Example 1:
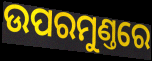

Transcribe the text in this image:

ଉପରମୁଣ୍ତରେ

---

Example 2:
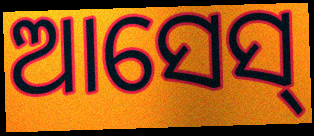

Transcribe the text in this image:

ଆସେସ୍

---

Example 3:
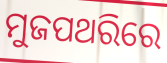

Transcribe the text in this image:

ମୁଜପଥରିରେ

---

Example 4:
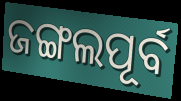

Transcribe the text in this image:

ଜଙ୍ଗଲପୂର୍ବ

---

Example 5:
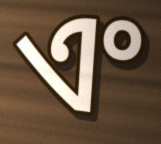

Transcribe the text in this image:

ଏଂ